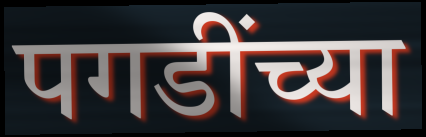
पगडींच्या